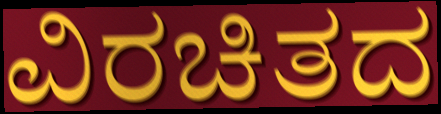
ವಿರಚಿತದ